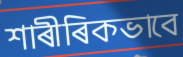
শাৰীৰিকভাবে